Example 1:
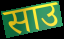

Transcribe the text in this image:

साउ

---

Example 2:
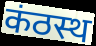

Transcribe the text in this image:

कंठस्थ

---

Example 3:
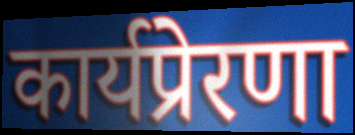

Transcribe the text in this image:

कार्यप्रेरणा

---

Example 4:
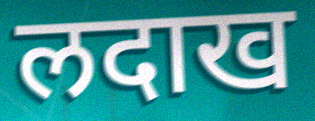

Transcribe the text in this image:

लदाख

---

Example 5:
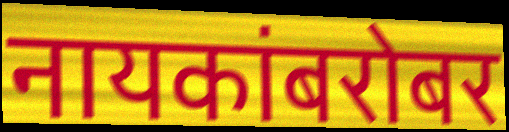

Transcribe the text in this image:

नायकांबरोबर